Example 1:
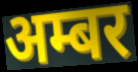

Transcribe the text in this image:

अम्बर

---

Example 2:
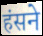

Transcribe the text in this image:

हंसने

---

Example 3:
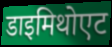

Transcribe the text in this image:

डाइमिथोएट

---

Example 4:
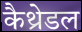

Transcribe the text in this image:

कैथ्रेडल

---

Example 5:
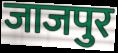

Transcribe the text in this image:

जाजपुर